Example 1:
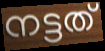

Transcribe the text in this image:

നട്ടത്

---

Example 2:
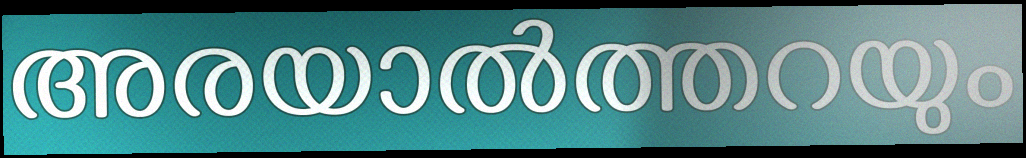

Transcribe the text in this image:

അരയാൽത്തറയും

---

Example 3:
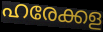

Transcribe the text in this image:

ഹരേക്കള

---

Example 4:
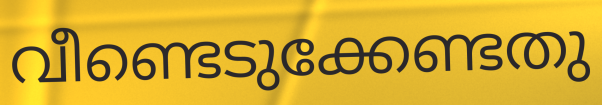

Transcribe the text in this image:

വീണ്ടെടുക്കേണ്ടതു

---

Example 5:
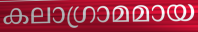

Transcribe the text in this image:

കലാഗ്രാമമായ